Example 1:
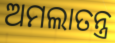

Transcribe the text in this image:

ଅମଲାତନ୍ତ୍ର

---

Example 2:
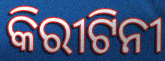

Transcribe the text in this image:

କିରୀଟିନୀ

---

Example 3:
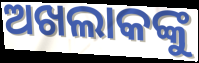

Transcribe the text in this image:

ଅଖଲାକଙ୍କୁ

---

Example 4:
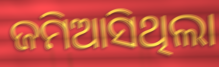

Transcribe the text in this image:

ଜମିଆସିଥିଲା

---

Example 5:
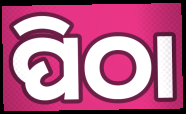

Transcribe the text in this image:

ପିଠା